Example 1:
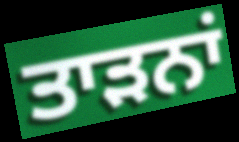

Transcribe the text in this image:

ਤਾੜਨਾਂ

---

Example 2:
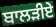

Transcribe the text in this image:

ਬਾਲੜੀਏ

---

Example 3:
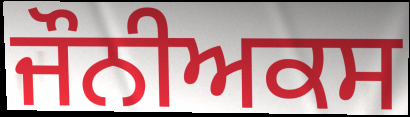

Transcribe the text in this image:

ਜੌਨੀਅਕਸ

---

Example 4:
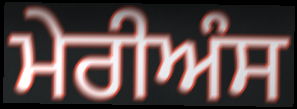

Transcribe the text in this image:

ਮੇਰੀਅੰਸ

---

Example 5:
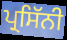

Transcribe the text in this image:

ਪ੍ਰਸਿੱਨੀ